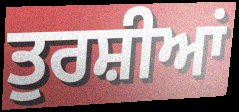
ਤੁਰਸ਼ੀਆਂ